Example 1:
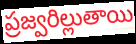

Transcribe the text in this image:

ప్రజ్వరిల్లుతాయి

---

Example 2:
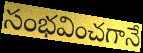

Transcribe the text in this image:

సంభవించగానే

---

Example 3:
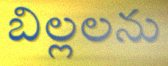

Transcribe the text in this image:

బిల్లలను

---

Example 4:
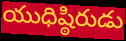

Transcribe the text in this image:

యుధిష్ఠిరుడు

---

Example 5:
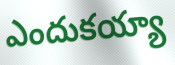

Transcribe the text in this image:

ఎందుకయ్యా